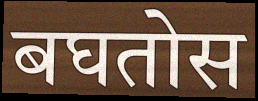
बघतोस